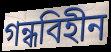
গন্ধবিহীন